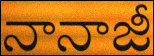
నానాజీ